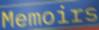
Memoirs